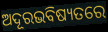
ଅଦୂରଭବିଷ୍ୟତରେ